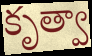
కృత్వా